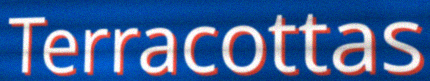
Terracottas